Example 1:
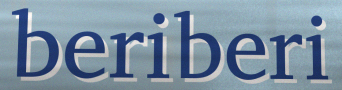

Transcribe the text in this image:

beriberi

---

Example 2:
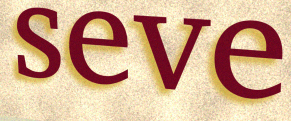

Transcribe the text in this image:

seve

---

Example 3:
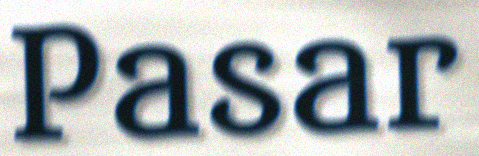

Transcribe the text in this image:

Pasar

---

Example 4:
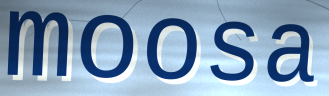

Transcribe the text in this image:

moosa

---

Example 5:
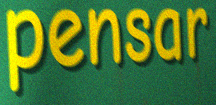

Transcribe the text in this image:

pensar